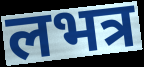
लभत्र